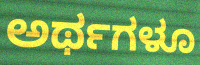
ಅರ್ಥಗಳೂ